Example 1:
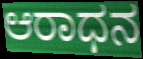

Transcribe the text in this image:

ಆರಾಧನ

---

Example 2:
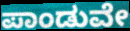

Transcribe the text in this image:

ಪಾಂಡುವೇ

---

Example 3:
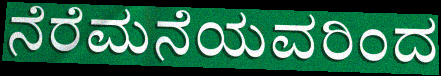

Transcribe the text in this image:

ನೆರೆಮನೆಯವರಿಂದ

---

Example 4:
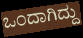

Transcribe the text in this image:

ಒಂದಾಗಿದ್ದು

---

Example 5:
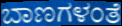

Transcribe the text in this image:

ಬಾಣಗಳಂತೆ